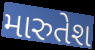
મારુતેશ